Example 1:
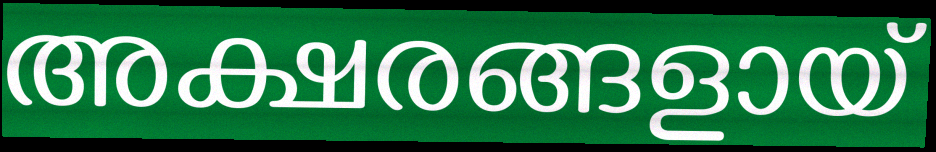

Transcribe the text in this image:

അക്ഷരങ്ങളായ്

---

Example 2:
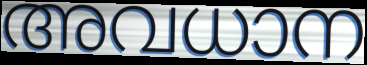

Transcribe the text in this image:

അവധാന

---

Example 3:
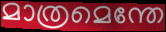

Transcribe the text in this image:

മാത്രമെന്തേ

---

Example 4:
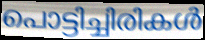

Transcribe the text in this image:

പൊട്ടിച്ചിരികൾ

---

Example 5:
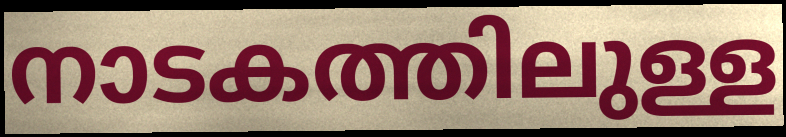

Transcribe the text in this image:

നാടകത്തിലുള്ള